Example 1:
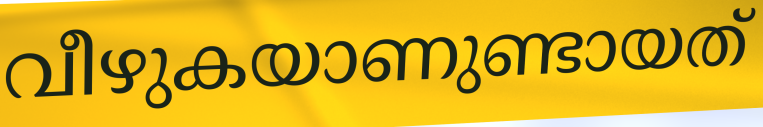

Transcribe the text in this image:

വീഴുകയാണുണ്ടായത്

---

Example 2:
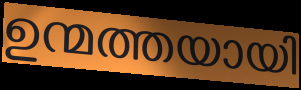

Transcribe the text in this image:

ഉന്മത്തയായി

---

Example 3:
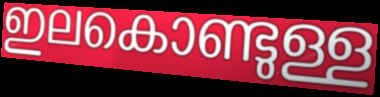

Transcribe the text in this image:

ഇലകൊണ്ടുള്ള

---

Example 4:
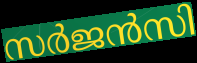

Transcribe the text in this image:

സർജൻസി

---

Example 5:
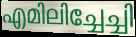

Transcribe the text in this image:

എമിലിച്ചേച്ചി